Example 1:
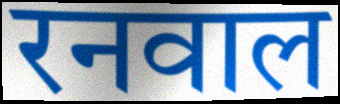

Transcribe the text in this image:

रनवाल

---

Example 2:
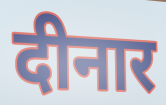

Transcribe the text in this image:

दीनार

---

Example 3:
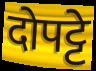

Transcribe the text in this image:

दोपट्टे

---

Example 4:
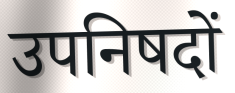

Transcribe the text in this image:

उपनिषदों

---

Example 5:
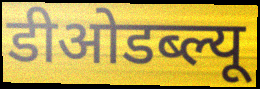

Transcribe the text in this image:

डीओडब्ल्यू